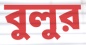
বুলুর